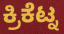
ಕ್ರಿಕೆಟ್ನ